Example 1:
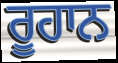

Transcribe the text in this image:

ਰੂਹਾਨ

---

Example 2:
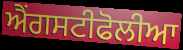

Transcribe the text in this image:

ਐਂਗਸਟੀਫੋਲੀਆ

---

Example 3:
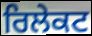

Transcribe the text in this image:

ਰਿਲੇਕਟ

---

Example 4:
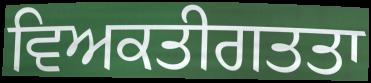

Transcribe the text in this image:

ਵਿਅਕਤੀਗਤਤਾ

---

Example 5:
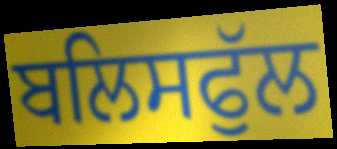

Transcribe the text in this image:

ਬਲਿਸਫੁੱਲ